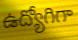
ఉద్యోగిగా